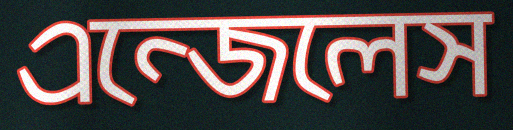
এন্জেলেস